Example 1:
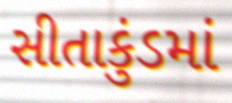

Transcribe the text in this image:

સીતાકુંડમાં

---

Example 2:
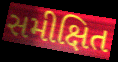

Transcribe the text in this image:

સમીક્ષિત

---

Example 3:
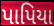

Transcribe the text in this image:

પાપિયા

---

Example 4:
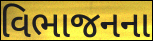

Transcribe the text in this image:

વિભાજનના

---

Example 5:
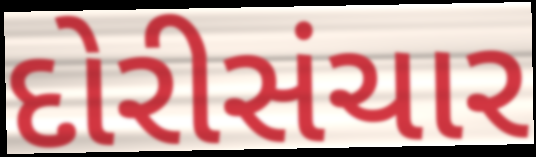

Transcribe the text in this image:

દોરીસંચાર